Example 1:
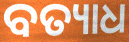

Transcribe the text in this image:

ବତ୍ୟାଧ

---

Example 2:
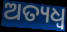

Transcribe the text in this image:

ଅତ୍ୟଧ୍ୱ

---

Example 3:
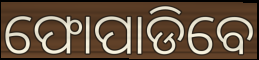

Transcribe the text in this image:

ଫୋପାଡିବେ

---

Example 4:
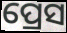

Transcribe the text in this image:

ପ୍ରେସ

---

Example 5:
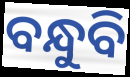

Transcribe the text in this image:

ବନ୍ଧୁବି